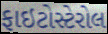
ફાઇટોસ્ટેરોલ